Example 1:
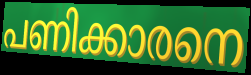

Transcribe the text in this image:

പണിക്കാരനെ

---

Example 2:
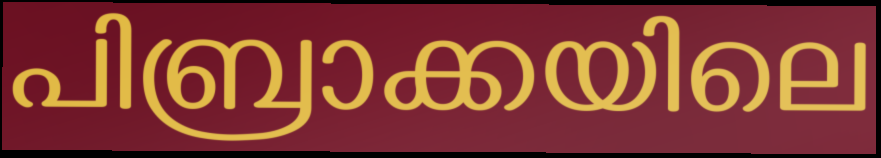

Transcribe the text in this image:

പിബ്രാക്കയിലെ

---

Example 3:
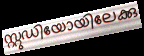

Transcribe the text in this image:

സ്റ്റുഡിയോയിലേക്കു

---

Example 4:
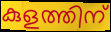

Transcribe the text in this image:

കുളത്തിന്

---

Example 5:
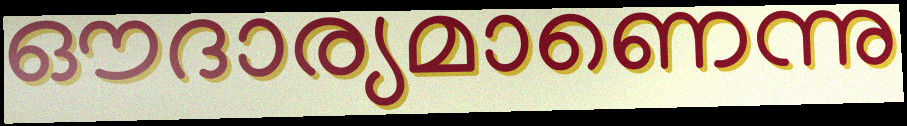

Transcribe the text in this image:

ഔദാര്യമാണെന്നു